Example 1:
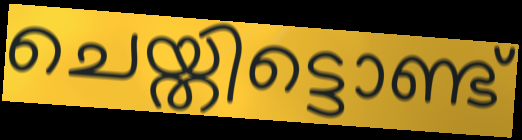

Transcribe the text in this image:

ചെയ്തിട്ടൊണ്ട്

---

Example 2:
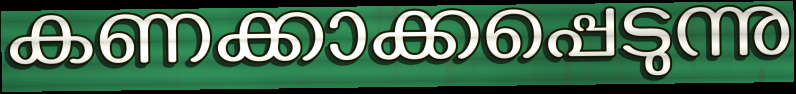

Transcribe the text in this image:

കണക്കാക്കപ്പെടുന്നു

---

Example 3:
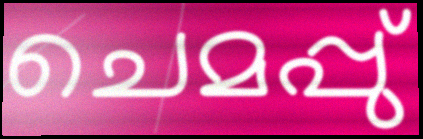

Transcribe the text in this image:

ചെമപ്പു്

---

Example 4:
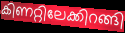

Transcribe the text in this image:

കിണറ്റിലേക്കിറങ്ങി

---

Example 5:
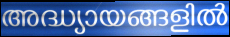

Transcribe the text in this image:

അദ്ധ്യായങ്ങളിൽ